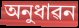
অনুধাৱন